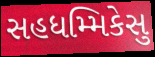
સહધમ્મિકેસુ